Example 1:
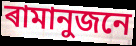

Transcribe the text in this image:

ৰামানুজনে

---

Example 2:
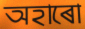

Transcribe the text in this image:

অহাৰো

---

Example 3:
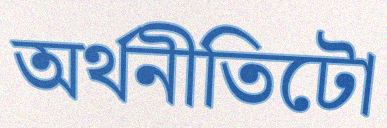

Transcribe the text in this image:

অৰ্থনীতিটো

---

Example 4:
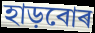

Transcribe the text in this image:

হাড়বোৰ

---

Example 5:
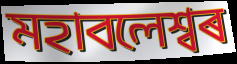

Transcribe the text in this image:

মহাবলেশ্বৰ